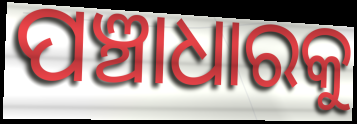
ପଞ୍ଚାଧାରକୁ